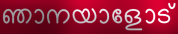
ഞാനയാളോട്